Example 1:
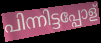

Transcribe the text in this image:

പിന്നിട്ടപ്പോള്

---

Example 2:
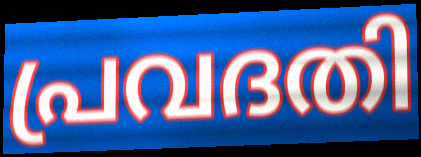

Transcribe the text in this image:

പ്രവദതി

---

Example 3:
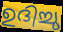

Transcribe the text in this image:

ഉദിച്ചു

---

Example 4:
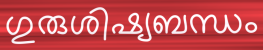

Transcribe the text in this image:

ഗുരുശിഷ്യബന്ധം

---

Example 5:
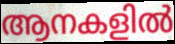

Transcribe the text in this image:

ആനകളിൽ